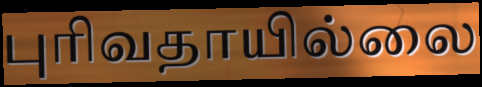
புரிவதாயில்லை